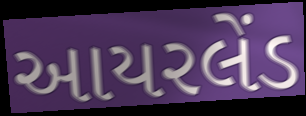
આયરલેંડ